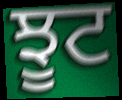
ਝੂਟ